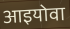
आइयोवा